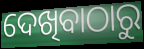
ଦେଖିବାଠାରୁ